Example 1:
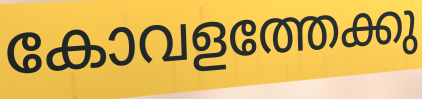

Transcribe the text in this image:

കോവളത്തേക്കു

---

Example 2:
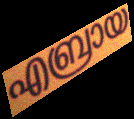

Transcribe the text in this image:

എബ്രായ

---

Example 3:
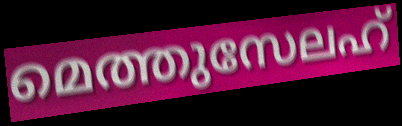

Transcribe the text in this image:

മെത്തുസേലഹ്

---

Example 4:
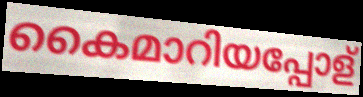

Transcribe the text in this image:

കൈമാറിയപ്പോള്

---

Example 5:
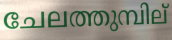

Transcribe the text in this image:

ചേലത്തുമ്പില്